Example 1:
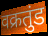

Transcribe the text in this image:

वक्रतुंड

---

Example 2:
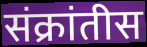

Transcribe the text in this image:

संक्रांतीस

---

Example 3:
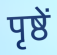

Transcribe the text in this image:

पृष्ठें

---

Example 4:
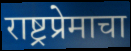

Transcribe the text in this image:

राष्ट्रप्रेमाचा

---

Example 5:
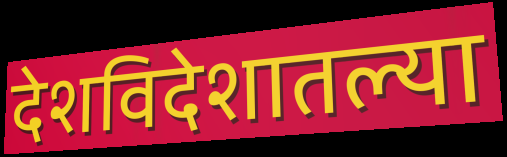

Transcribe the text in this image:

देशविदेशातल्या